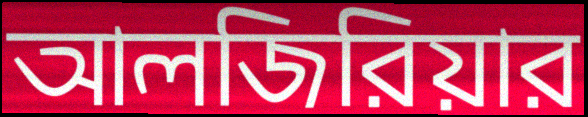
আলজিরিয়ার